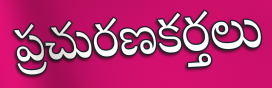
ప్రచురణకర్తలు